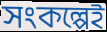
সংকল্পেই